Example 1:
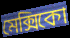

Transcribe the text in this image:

মেক্সিকো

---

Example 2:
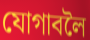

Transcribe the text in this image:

যোগাবলৈ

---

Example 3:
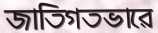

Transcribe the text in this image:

জাতিগতভাৱে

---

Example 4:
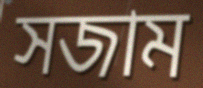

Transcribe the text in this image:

সজাম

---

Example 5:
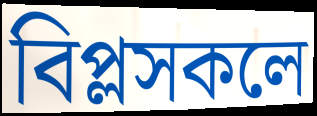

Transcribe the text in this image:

বিপ্লসকলে